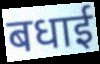
बधाई